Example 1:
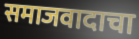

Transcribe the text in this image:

समाजवादाचा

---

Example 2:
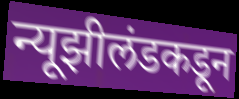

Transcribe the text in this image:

न्यूझीलंडकडून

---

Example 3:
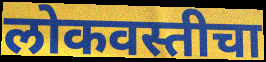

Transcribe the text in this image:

लोकवस्तीचा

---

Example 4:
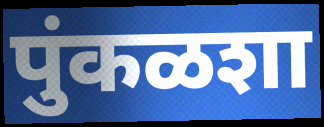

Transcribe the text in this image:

पुंकळशा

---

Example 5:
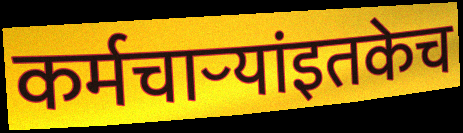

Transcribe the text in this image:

कर्मचाऱ्यांइतकेच